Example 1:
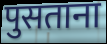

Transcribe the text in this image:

पुसताना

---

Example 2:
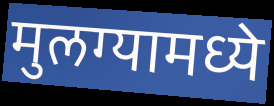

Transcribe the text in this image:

मुलग्यामध्ये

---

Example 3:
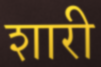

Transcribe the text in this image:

शारी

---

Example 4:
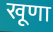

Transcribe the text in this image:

खूणा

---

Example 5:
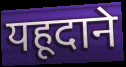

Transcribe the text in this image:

यहूदाने